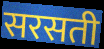
सरसती